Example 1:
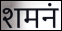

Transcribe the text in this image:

शमनं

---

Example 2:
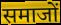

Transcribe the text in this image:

समाजों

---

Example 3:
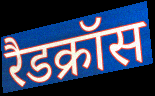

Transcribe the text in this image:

रैडक्रॉस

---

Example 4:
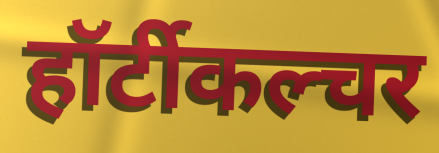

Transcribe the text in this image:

हॉर्टीकल्चर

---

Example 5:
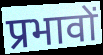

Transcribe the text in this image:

प्रभावों